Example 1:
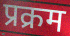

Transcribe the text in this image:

प्रक्रम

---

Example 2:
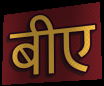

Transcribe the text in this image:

बीए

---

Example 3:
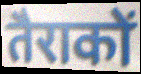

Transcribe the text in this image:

तैराकों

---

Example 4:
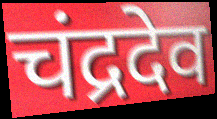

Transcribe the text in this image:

चंद्रदेव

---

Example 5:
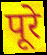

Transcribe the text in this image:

पूरे